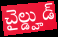
చైల్డ్హుడ్